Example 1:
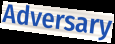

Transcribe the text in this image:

Adversary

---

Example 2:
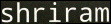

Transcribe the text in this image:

shriram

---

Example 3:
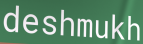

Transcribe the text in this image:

deshmukh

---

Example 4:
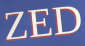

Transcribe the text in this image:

ZED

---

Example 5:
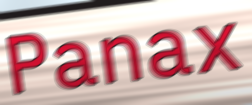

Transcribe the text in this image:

Panax